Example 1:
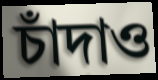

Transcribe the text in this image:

চাঁদাও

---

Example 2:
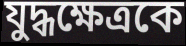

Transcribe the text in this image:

যুদ্ধক্ষেত্রকে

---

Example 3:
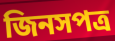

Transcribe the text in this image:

জিনসপত্র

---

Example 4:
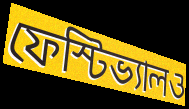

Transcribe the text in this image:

ফেস্টিভ্যালও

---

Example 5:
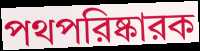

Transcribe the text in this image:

পথপরিষ্কারক